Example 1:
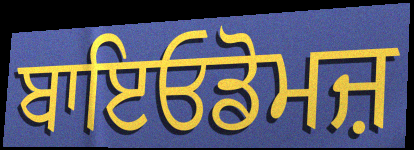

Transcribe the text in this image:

ਬਾਇਓਡੋਮਜ਼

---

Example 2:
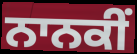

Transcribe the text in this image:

ਨਾਨਕੀਂ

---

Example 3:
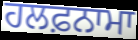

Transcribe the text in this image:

ਹਲਫ਼ਨਾਮਾ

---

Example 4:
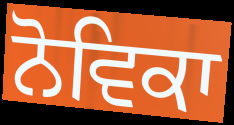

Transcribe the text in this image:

ਨੋਵਿਕਾ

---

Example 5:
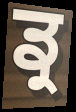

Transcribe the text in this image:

ਡ੍ਰ